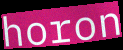
horon